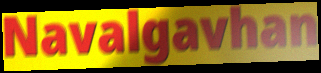
Navalgavhan